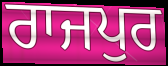
ਰਾਜਪੁਰ